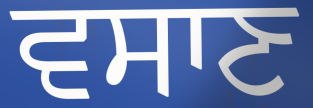
ਵਸਾਣ